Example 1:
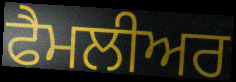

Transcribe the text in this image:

ਫੈਮਲੀਅਰ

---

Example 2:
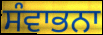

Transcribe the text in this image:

ਸੰਵਾਭਨਾ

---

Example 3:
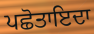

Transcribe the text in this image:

ਪਛੋਤਾਇਦਾ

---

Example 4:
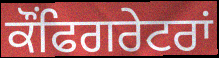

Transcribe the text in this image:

ਕੌਂਫਿਗਰੇਟਰਾਂ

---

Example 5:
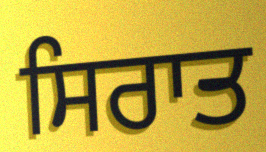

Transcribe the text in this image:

ਸਿਰਾਤ